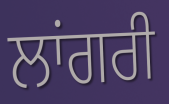
ਲਾਂਗਰੀ